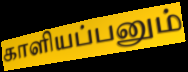
காளியப்பனும்